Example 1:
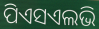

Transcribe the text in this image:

ପିଏସଏଲଭି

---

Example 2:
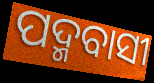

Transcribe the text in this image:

ପଦ୍ମବାସୀ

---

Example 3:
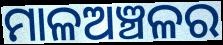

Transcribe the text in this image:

ମାଳଅଞ୍ଚଳର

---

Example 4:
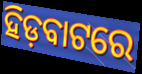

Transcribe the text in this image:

ହିଡ଼ବାଟରେ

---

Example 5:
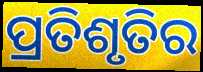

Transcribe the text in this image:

ପ୍ରତିଶୃତିର